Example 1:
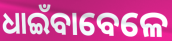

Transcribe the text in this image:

ଧାଇଁବାବେଳେ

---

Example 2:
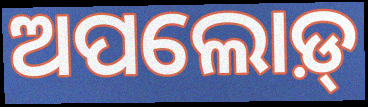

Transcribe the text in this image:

ଅପଲୋଡ଼୍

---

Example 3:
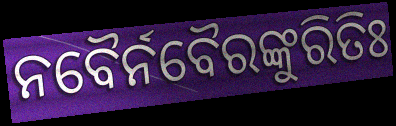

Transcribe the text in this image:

ନବୈର୍ନବୈରଙ୍କୁରିତିଃ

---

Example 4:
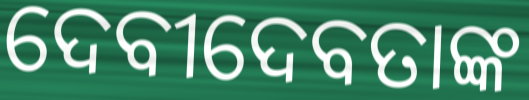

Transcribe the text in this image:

ଦେବୀଦେବତାଙ୍କ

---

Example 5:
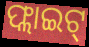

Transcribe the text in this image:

ଫ୍ଲାଇଟ୍